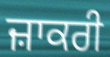
ਜ਼ਾਕਰੀ